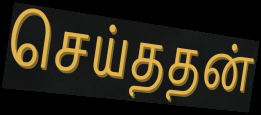
செய்ததன்